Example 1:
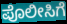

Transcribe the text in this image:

ಪೊಲೀಸಿಗೆ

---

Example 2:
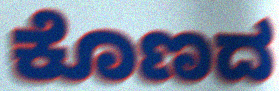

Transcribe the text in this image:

ಕೊಣದ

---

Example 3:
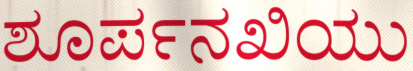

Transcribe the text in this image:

ಶೂರ್ಪನಖಿಯು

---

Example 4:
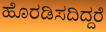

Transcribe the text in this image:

ಹೊರಡಿಸದಿದ್ದರೆ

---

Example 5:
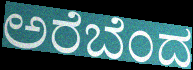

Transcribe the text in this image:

ಅರೆಬೆಂದ